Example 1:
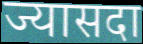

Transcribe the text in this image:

ज्यासदा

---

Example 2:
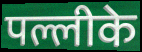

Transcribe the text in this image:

पल्लीके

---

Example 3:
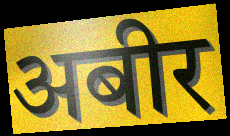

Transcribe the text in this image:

अबीर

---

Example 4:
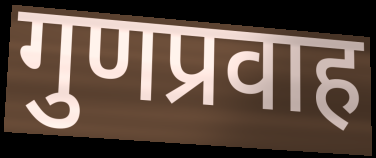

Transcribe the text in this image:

गुणप्रवाह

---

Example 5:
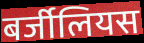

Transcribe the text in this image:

बर्जीलियस